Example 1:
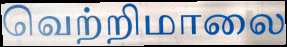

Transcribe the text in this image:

வெற்றிமாலை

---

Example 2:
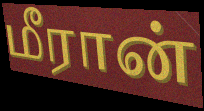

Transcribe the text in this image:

மீரான்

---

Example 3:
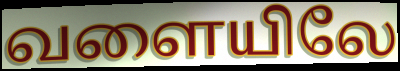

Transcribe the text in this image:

வளையிலே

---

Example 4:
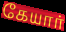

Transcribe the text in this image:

கேயார்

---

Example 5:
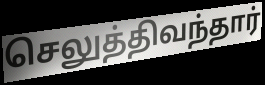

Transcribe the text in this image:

செலுத்திவந்தார்